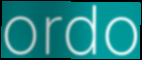
ordo